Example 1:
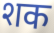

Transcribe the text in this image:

शक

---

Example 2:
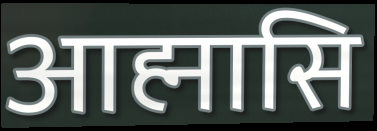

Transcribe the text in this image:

आह्मासि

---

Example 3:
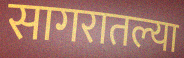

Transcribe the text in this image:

सागरातल्या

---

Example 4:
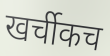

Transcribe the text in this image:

खर्चीकच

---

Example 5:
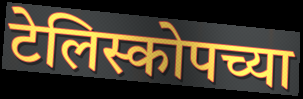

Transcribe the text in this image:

टेलिस्कोपच्या